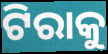
ଟିରାକୁ